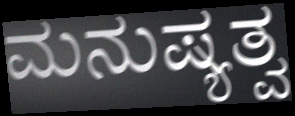
ಮನುಷ್ಯತ್ವ